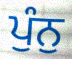
ਪੁੰਨੁ